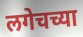
लगेचच्या